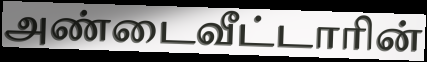
அண்டைவீட்டாரின்